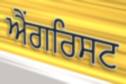
ਐਂਗਰਿਸਟ